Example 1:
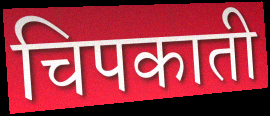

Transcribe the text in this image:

चिपकाती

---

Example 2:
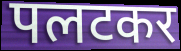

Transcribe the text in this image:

पलटकर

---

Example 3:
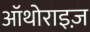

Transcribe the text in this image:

ऑथोराइज़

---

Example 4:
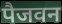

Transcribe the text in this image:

पैजवन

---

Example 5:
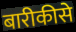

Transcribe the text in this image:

बारीकीसे